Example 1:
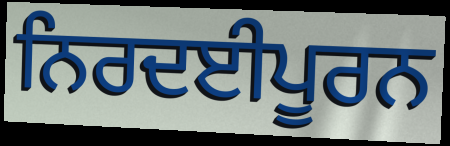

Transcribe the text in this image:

ਨਿਰਦਈਪੂਰਨ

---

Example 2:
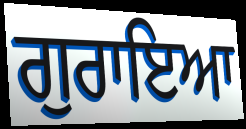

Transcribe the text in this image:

ਗੁਰਾਇਆ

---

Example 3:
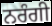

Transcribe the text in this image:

ਨਰੰਗੀ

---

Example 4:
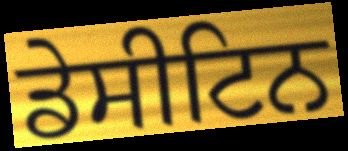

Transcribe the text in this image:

ਡੇਸੀਟਿਨ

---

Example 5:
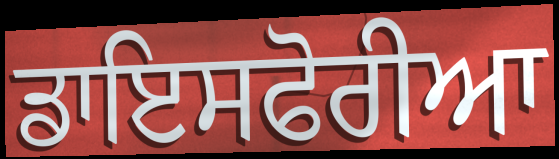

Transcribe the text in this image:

ਡਾਇਸਫੋਰੀਆ